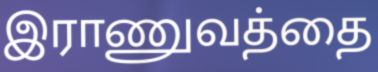
இராணுவத்தை